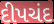
દીપચંદ